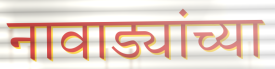
नावाड्यांच्या